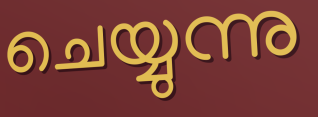
ചെയ്യുന്നു